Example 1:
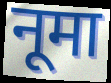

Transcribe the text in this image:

नूमा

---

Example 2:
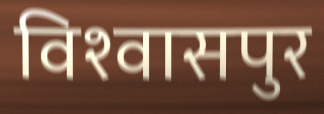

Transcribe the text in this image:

विश्वासपुर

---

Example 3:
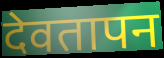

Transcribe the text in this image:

देवतापन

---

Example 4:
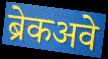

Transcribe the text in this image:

ब्रेकअवे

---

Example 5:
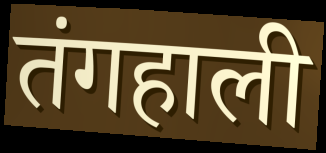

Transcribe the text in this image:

तंगहाली